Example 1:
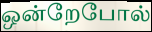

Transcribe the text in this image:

ஒன்றேபோல்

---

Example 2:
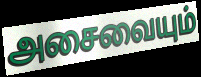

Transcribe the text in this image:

அசைவையும்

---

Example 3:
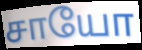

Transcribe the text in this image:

சாயோ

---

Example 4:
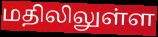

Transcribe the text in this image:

மதிலிலுள்ள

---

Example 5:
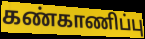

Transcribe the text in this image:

கண்காணிப்பு